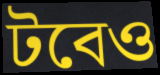
টবেও